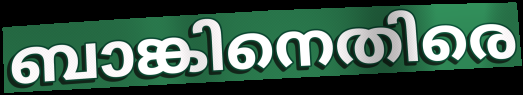
ബാങ്കിനെതിരെ